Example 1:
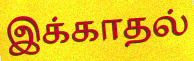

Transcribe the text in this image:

இக்காதல்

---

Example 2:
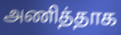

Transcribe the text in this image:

அணித்தாக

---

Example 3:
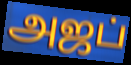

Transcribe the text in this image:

அஜப்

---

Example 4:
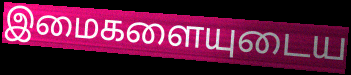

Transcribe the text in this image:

இமைகளையுடைய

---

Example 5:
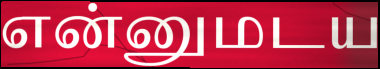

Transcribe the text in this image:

என்னுமடய